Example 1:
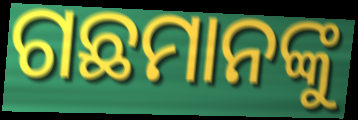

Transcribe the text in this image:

ଗଛମାନଙ୍କୁ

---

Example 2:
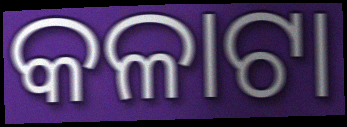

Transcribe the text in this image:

କଳାଟା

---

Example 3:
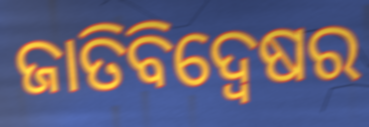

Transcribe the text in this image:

ଜାତିବିଦ୍ୱେଷର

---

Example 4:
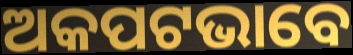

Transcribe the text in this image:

ଅକପଟଭାବେ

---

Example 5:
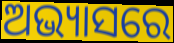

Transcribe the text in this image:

ଅଭ୍ୟାସରେ